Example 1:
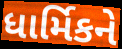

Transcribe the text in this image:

ધાર્મિકને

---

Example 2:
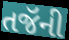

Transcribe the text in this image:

તજૅની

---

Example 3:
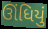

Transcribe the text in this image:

ઊંધિયું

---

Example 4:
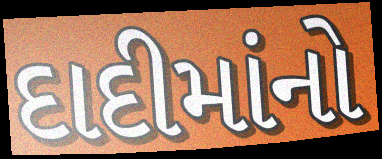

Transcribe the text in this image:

દાદીમાંનો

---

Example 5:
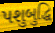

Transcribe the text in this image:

પશુબુદ્ધિ